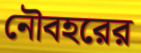
নৌবহরের